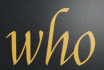
who